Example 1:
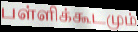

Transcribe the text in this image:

பள்ளிக்கூடமும்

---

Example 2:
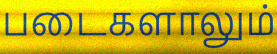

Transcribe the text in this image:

படைகளாலும்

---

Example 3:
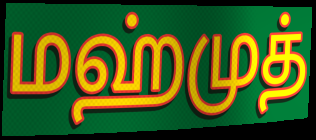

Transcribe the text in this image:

மஹ்முத்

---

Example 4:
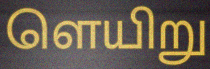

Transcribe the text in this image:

ளெயிறு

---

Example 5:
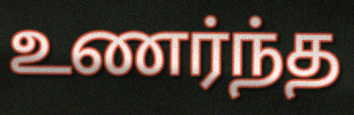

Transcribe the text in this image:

உணர்ந்த